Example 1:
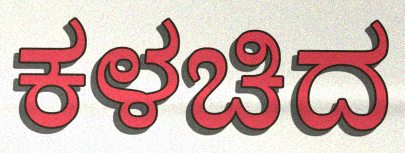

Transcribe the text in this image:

ಕಳಚಿದ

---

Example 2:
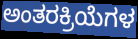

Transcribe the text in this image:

ಅಂತರಕ್ರಿಯೆಗಳ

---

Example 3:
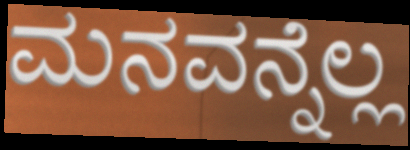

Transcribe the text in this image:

ಮನವನ್ನೆಲ್ಲ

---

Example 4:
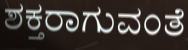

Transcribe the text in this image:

ಶಕ್ತರಾಗುವಂತೆ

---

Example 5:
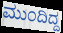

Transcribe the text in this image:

ಮುಂದಿದ್ದ